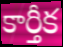
కార్తీక